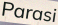
Parasi